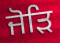
ਜੋੜਿ